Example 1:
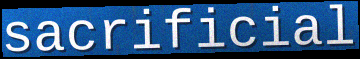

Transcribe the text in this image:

sacrificial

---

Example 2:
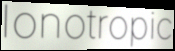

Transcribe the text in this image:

Ionotropic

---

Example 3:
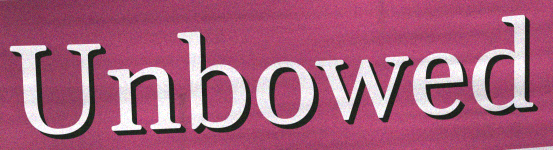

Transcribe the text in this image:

Unbowed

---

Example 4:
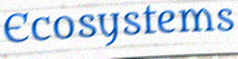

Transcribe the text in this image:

Ecosystems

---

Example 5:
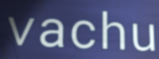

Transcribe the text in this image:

vachu